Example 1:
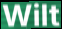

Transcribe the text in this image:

Wilt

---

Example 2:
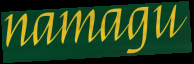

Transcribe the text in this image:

namagu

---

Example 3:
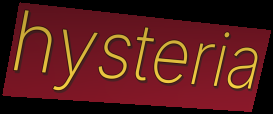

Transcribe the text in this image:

hysteria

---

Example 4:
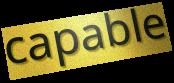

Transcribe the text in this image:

capable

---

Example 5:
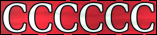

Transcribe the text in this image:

CCCCCC